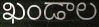
ఖండాల